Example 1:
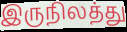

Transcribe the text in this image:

இருநிலத்து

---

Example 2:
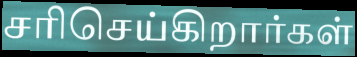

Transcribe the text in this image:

சரிசெய்கிறார்கள்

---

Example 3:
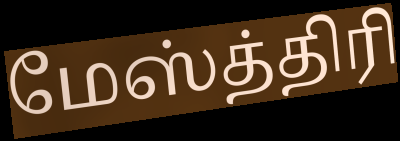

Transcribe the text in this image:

மேஸ்த்திரி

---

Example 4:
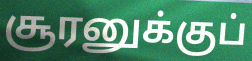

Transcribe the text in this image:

சூரனுக்குப்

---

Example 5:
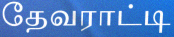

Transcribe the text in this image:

தேவராட்டி